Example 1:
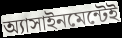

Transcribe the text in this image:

অ্যাসাইনমেন্টেই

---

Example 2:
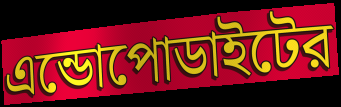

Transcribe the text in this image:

এন্ডোপোডাইটের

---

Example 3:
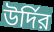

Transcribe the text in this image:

উর্দির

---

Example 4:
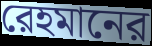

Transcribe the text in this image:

রেহমানের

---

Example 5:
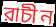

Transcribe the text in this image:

রাচীন